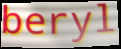
beryl